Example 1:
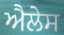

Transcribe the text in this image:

ਐਲੇਸ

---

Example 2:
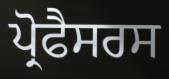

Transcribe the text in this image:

ਪ੍ਰੋਫੈਸਰਸ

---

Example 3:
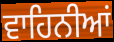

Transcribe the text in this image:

ਵਾਹਿਨੀਆਂ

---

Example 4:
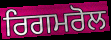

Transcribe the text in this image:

ਰਿਗਮਰੋਲ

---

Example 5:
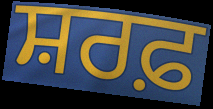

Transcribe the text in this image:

ਸ਼ਰਫ਼